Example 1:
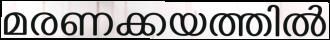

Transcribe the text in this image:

മരണക്കയത്തിൽ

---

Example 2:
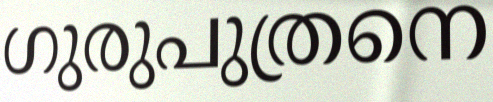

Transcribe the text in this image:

ഗുരുപുത്രനെ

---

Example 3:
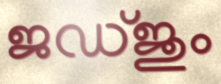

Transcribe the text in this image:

ജഡ്ജും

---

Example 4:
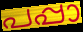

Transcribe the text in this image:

പപ്പാ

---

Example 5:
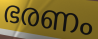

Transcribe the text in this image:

ഭരണം